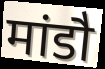
मांडौ